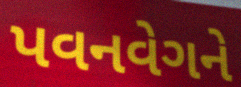
પવનવેગને